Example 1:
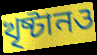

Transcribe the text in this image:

খৃষ্টানও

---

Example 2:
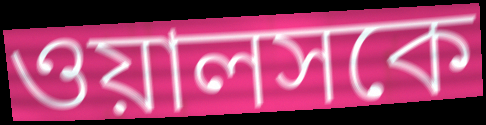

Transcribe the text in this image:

ওয়ালসকে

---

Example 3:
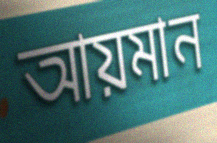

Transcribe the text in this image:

আয়মান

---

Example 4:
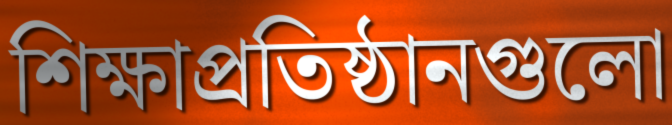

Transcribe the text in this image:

শিক্ষাপ্রতিষ্ঠানগুলো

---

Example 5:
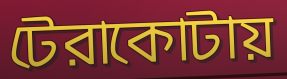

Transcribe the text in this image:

টেরাকোটায়